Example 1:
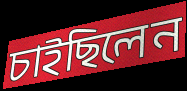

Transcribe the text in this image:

চাইছিলেন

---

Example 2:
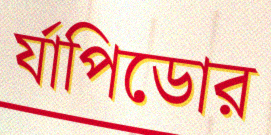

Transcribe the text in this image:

র্যাপিডোর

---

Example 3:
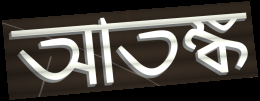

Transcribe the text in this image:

আতঙ্ক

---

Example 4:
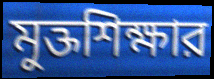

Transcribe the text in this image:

মুক্তশিক্ষার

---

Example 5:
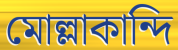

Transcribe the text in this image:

মোল্লাকান্দি